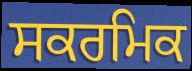
ਸਕਰਮਿਕ